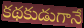
కథకుడుగానే